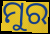
ମୁର